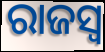
ରାଜସ୍ୱ